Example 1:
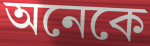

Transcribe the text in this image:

অনেকে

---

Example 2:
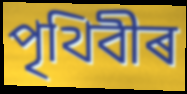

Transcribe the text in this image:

পৃথিবীৰ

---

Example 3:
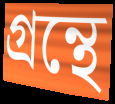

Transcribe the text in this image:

গ্ৰন্থে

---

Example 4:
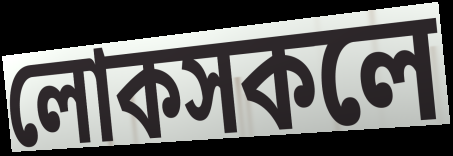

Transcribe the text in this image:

লোকসকলে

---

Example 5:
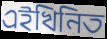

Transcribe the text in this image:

এইখিনিত